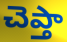
చెప్తా